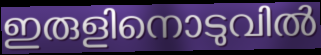
ഇരുളിനൊടുവിൽ